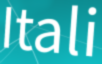
Itali